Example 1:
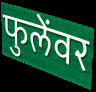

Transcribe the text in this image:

फुलेंवर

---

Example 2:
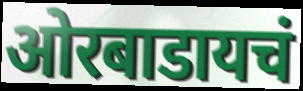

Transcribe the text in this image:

ओरबाडायचं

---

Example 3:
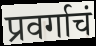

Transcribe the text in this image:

प्रवर्गाचं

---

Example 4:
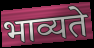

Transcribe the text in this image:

भाव्यते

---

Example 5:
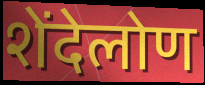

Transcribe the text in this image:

शेंदेलोण